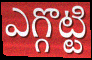
ఎగ్గొట్టి